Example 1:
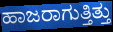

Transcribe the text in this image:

ಹಾಜರಾಗುತ್ತಿತ್ತು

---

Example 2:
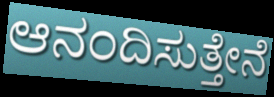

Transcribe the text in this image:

ಆನಂದಿಸುತ್ತೇನೆ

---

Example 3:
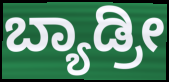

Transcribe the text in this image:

ಬ್ಯಾಡ್ರೀ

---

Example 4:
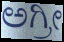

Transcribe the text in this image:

ಅಗ್ರೀ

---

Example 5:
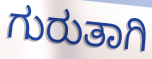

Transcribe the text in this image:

ಗುರುತಾಗಿ